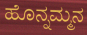
ಹೊನ್ನಮ್ಮನ